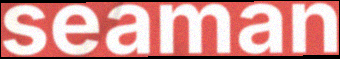
seaman